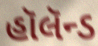
હૉલૅન્ડ